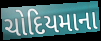
ચોદિયમાના